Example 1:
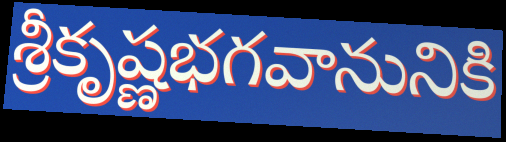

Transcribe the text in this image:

శ్రీకృష్ణభగవానునికి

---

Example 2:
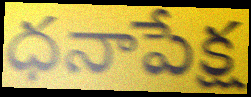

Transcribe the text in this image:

ధనాపేక్ష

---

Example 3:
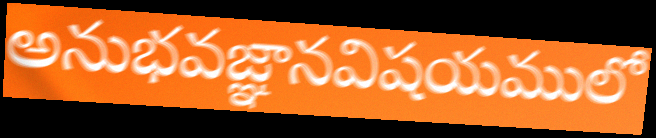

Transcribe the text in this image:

అనుభవజ్ఞానవిషయములో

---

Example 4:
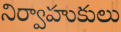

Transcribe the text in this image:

నిర్వాహుకులు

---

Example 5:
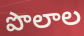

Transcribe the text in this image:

పొలాల